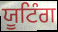
ਯੂਟਿੰਗ